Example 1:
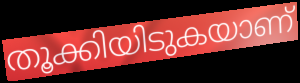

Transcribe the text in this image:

തൂക്കിയിടുകയാണ്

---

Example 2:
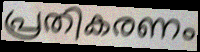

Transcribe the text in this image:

പ്രതികരണം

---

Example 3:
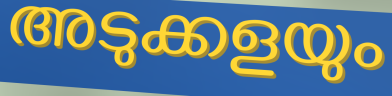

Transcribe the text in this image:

അടുക്കളയും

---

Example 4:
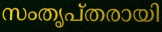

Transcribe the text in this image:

സംതൃപ്തരായി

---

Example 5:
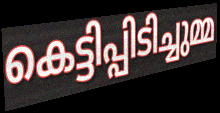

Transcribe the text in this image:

കെട്ടിപ്പിടിച്ചുമ്മ